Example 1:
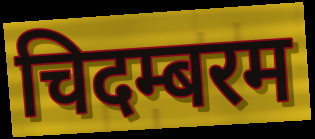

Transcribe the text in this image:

चिदम्बरम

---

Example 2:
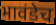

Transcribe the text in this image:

भावंडेच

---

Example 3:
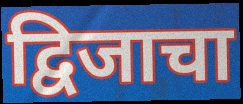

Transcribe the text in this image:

द्विजाचा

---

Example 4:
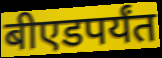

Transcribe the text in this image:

बीएडपर्यंत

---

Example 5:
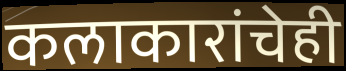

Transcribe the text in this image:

कलाकारांचेही